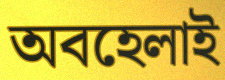
অবহেলাই